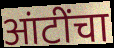
आंटींचा